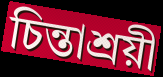
চিন্তাশ্রয়ী